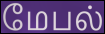
மேபல்